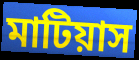
মাটিয়াস